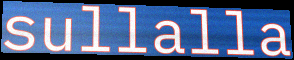
sullalla